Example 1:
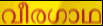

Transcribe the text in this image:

വീരഗാഥ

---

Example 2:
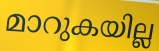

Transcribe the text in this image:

മാറുകയില്ല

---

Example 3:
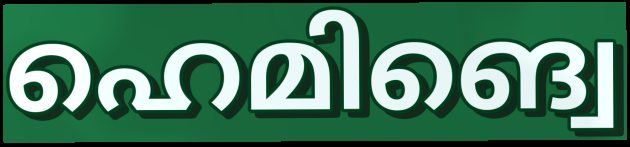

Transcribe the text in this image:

ഹെമിങ്വെ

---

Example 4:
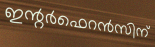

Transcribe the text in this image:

ഇന്റർഫെറൻസിന്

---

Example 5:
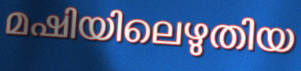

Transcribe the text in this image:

മഷിയിലെഴുതിയ